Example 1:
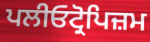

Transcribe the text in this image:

ਪਲੀਓਟ੍ਰੋਪਿਜ਼ਮ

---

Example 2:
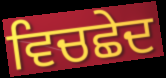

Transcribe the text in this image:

ਵਿਚਛੇਦ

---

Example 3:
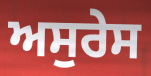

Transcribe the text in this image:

ਅਸੁਰੇਸ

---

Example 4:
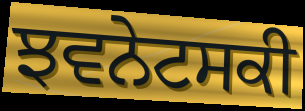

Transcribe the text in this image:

ਝਵਨੇਟਸਕੀ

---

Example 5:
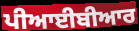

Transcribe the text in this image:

ਪੀਆਈਬੀਆਰ